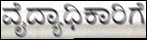
ವೈದ್ಯಾಧಿಕಾರಿಗೆ